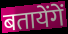
बतायेंगें